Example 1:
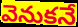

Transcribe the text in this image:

వెనుకనే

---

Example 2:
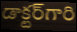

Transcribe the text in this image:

డాక్టర్‌గారి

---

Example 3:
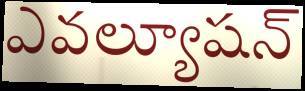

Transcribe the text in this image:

ఎవల్యూషన్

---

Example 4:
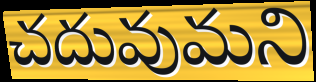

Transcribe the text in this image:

చదువుమని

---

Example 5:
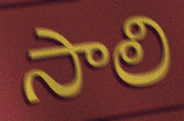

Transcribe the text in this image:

సాలి